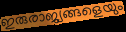
ഇരുരാജ്യങ്ങളെയും